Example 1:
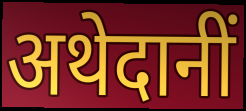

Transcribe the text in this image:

अथेदानीं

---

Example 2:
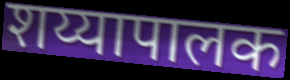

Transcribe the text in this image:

शय्यापालक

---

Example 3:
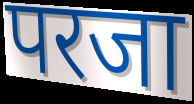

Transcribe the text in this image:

परजा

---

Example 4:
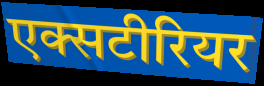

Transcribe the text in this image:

एक्‍सटीरियर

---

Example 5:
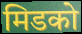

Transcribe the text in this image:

मिडको